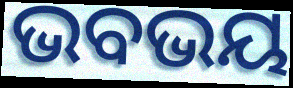
ଭବଭୟ